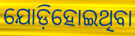
ଯୋଡ଼ିହୋଇଥିବା